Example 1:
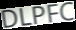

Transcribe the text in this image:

DLPFC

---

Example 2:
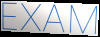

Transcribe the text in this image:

EXAM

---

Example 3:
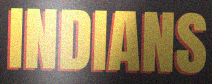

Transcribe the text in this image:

INDIANS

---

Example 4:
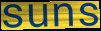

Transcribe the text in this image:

suns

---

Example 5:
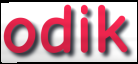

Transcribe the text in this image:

odik